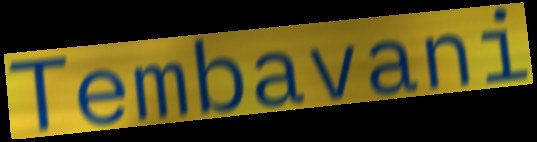
Tembavani